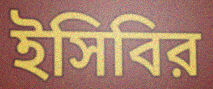
ইসিবির